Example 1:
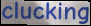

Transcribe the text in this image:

clucking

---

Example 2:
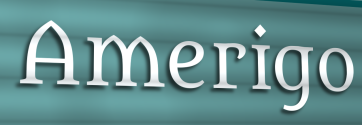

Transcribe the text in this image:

Amerigo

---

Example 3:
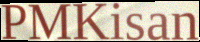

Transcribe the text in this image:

PMKisan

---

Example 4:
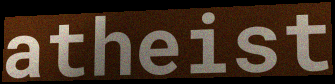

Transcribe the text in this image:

atheist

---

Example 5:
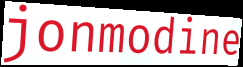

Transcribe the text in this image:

jonmodine